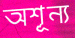
অশূন্য